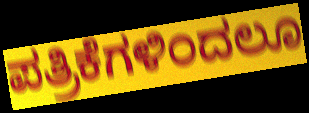
ಪತ್ರಿಕೆಗಳಿಂದಲೂ